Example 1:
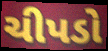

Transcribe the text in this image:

ચીપડો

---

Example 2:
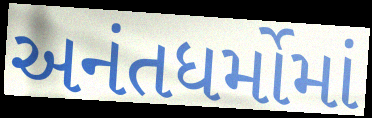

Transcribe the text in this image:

અનંતધર્મોમાં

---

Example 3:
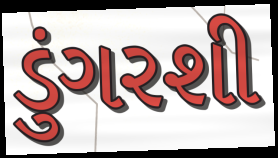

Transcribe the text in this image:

ડુંગરશી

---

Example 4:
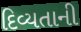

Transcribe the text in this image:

દિવ્યતાની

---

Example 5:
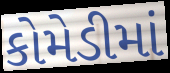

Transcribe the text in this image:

કોમેડીમાં